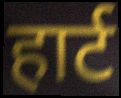
हार्ट